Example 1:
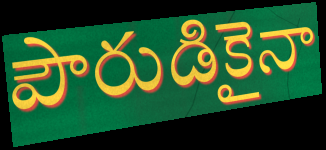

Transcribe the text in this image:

పౌరుడికైనా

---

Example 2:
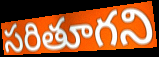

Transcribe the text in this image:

సరితూగని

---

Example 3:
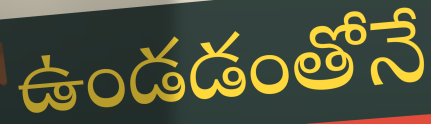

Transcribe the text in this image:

ఉండడంతోనే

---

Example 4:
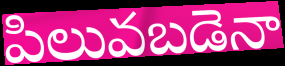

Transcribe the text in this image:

పిలువబడెనా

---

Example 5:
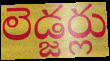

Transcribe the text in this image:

లెడ్జర్లు